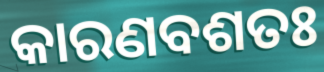
କାରଣବଶତଃ